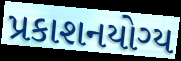
પ્રકાશનયોગ્ય